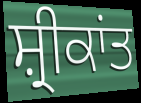
ਸ਼੍ਰੀਕਾਂਤ